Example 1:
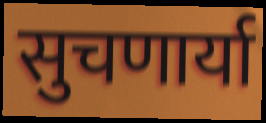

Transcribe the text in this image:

सुचणार्या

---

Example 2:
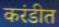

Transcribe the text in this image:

करंडीत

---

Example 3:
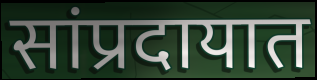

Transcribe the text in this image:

सांप्रदायात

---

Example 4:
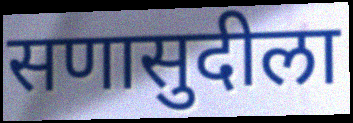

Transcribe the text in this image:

सणासुदीला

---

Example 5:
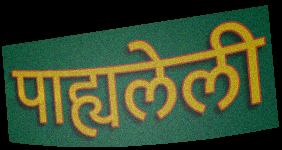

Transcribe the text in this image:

पाह्यलेली